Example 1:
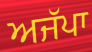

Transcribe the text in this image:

ਅਜੱਪਾ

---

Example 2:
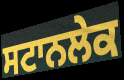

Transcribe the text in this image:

ਸਟਾਨਲੇਕ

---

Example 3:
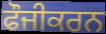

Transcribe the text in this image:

ਫੌਜੀਕਰਨ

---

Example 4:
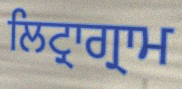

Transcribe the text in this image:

ਲਿਟ੍ਰਾਗ੍ਰਾਮ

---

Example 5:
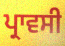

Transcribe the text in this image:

ਪ੍ਰਾਵਸੀ